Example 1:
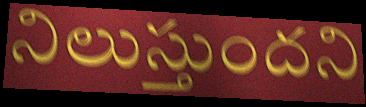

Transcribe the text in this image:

నిలుస్తుందని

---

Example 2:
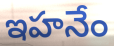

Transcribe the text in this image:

ఇహనేం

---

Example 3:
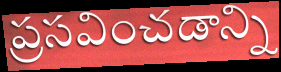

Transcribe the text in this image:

ప్రసవించడాన్ని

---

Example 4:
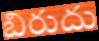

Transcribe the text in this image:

బిరుదు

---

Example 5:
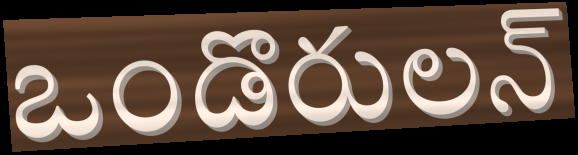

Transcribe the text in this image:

ఒండొరులన్